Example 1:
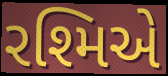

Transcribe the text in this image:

રશ્મિએ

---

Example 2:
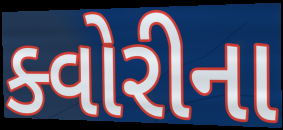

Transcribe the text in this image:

ક્વોરીના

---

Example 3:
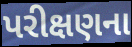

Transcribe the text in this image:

પરીક્ષણના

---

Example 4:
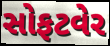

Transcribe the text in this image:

સોફટવેર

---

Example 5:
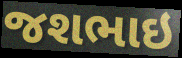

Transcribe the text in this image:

જશભાઇ